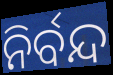
ନିର୍ବନ୍ଦ